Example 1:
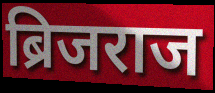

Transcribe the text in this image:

ब्रिजराज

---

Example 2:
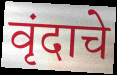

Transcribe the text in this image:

वृंदाचे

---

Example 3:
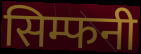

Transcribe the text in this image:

सिम्फनी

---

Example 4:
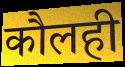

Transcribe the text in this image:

कौलही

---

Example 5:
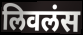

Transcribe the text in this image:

लिवलंस